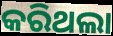
କରିଥଲା